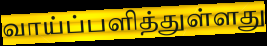
வாய்ப்பளித்துள்ளது